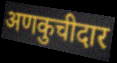
अणकुचीदार